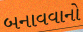
બનાવવાનો